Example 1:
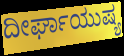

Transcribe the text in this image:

ದೀರ್ಘಾಯುಷ್ಯ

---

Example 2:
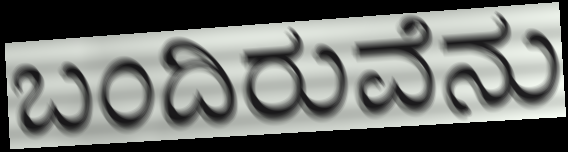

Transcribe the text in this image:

ಬಂದಿರುವೆನು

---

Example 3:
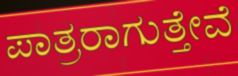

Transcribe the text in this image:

ಪಾತ್ರರಾಗುತ್ತೇವೆ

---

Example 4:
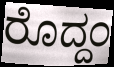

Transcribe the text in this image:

ರೊದ್ದಂ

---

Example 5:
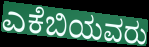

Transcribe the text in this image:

ಎಕೆಬಿಯವರು